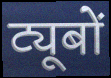
ट्यूबों